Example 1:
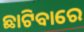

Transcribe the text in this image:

ଛାଟିବାରେ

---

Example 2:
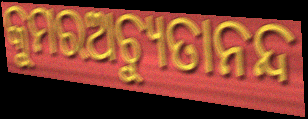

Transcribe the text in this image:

କୁମରଅଚ୍ୟୁତାନନ୍ଦ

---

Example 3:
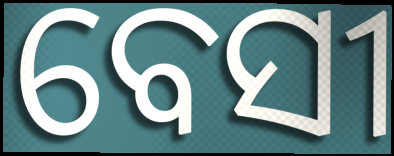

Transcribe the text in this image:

ବେସୀ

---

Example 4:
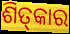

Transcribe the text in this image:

ଶିତ୍‍କାର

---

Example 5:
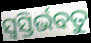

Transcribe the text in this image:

ସ୍ୱସ୍ତିର୍ଭବତୁ